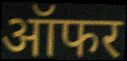
ऑफर